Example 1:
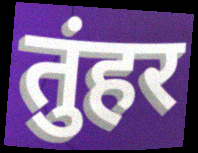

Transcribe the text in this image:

तुंहर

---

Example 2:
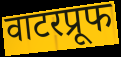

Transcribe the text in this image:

वाटरप्रूफ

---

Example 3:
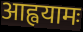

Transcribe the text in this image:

आह्वयामः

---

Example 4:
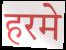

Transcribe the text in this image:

हरमे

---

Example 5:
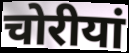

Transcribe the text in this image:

चोरीयां